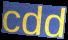
cdd